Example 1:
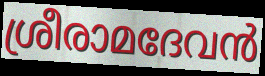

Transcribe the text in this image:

ശ്രീരാമദേവൻ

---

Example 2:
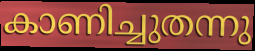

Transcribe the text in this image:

കാണിച്ചുതന്നു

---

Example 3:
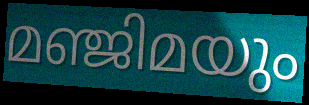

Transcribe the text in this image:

മഞ്ജിമയും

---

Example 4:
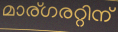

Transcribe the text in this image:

മാര്ഗരറ്റിന്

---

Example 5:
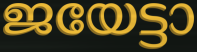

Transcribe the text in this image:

ജയേട്ടാ